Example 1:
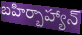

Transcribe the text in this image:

బహిర్బాహ్యాన్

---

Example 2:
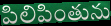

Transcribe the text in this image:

పిలిపింతును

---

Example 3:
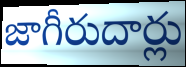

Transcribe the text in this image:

జాగీరుదార్లు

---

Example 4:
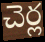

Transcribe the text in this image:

చెర్ల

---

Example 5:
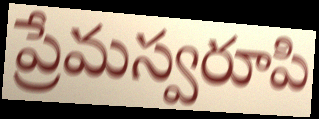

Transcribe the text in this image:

ప్రేమస్వరూపి